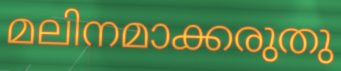
മലിനമാക്കരുതു